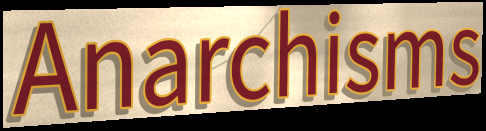
Anarchisms